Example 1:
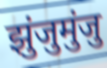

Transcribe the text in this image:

झुंजुमुंजु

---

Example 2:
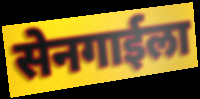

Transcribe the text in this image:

सेनगाईला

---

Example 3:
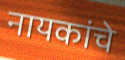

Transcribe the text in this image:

नायकांचे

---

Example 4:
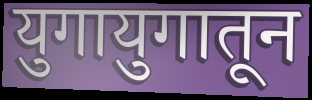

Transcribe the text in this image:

युगायुगातून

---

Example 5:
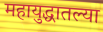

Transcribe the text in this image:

महायुद्धातल्या